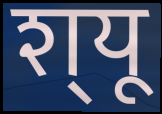
श्यू